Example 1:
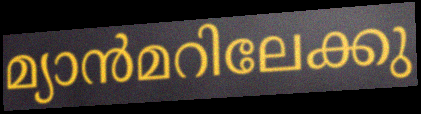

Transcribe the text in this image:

മ്യാൻമറിലേക്കു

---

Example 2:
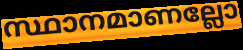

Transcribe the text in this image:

സ്ഥാനമാണല്ലോ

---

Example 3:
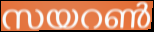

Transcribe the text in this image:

സയറൺ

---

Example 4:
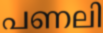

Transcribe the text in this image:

പണലി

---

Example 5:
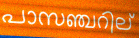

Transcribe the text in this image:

പാസഞ്ചറില്